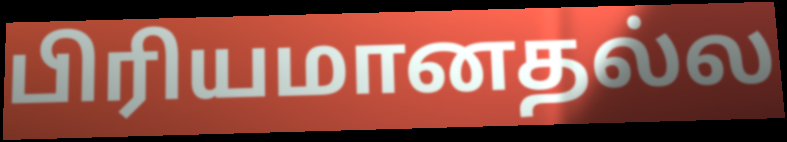
பிரியமானதல்ல